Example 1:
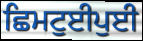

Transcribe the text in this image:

ਛਿਮਟੁਈਪੁਈ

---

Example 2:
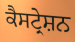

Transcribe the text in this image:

ਕੈਸਟ੍ਰੇਸ਼ਨ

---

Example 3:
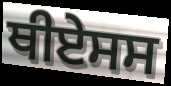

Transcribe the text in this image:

ਥੀਏਸਸ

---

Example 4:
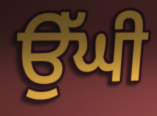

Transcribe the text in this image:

ਉੱਘੀ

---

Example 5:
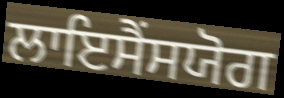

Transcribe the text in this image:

ਲਾਇਸੈਂਸਯੋਗ